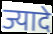
ज्यादे